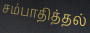
சம்பாதித்தல்